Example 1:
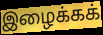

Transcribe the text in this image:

இழைக்கக்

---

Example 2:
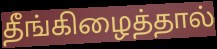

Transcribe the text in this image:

தீங்கிழைத்தால்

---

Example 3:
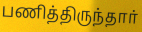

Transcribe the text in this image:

பணித்திருந்தார்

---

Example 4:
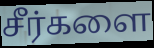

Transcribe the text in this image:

சீர்களை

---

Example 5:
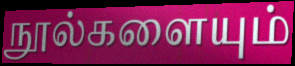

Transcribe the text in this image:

நூல்களையும்